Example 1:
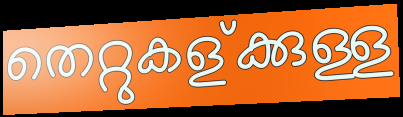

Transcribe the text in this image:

തെറ്റുകള്ക്കുള്ള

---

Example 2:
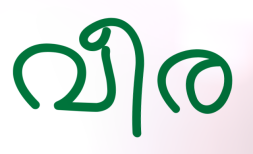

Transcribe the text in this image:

വീര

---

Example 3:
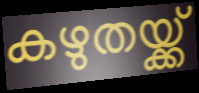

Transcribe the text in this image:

കഴുതയ്ക്ക്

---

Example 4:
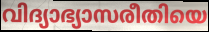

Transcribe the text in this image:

വിദ്യാഭ്യാസരീതിയെ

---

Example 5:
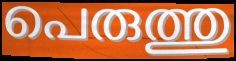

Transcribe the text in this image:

പെരുത്തു